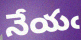
నేయఁ